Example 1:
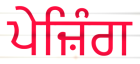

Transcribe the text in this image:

ਪੇਜ਼ਿੰਗ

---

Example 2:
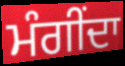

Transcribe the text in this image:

ਮੰਗੀਂਦਾ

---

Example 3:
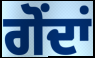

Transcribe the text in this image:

ਗੋਂਦਾਂ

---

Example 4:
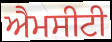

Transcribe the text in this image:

ਐਮਸੀਟੀ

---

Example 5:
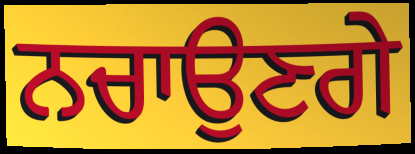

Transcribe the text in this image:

ਨਚਾਉਣਗੇ